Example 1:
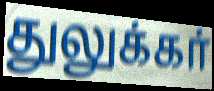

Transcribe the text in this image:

துலுக்கர்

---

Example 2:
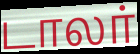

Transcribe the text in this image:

டாலர்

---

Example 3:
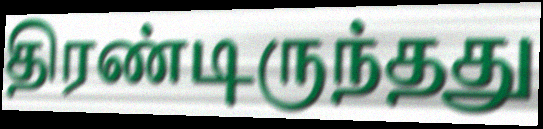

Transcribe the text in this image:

திரண்டிருந்தது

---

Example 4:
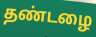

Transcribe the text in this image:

தண்டழை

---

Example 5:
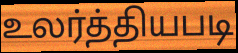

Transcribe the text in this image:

உலர்த்தியபடி